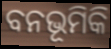
ବନଭୂମିକି